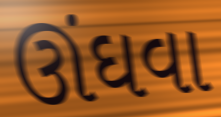
ઊંઘવા